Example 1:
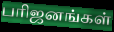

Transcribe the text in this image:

பரிஜனங்கள்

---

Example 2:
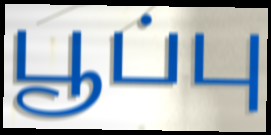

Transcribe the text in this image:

பூப்பு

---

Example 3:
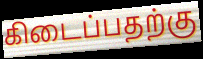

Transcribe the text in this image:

கிடைப்பதற்கு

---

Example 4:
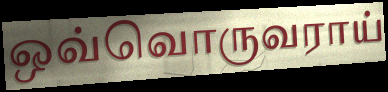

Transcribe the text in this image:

ஒவ்வொருவராய்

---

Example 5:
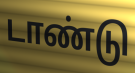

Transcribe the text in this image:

டாண்டு